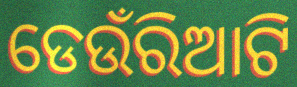
ଡେଉଁରିଆଟି